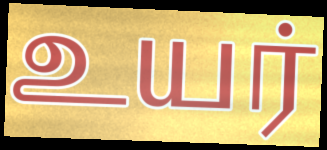
உயர்